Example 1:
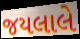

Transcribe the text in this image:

જયલાલે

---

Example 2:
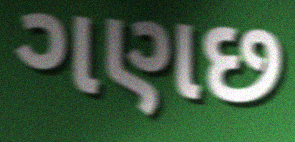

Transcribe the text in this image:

ગણછ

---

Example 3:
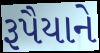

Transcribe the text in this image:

રૂપૈયાને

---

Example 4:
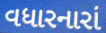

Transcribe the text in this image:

વધારનારાં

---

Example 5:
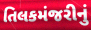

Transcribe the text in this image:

તિલકમંજરીનું